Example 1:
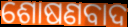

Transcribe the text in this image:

ଶୋଷଣବାଦ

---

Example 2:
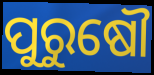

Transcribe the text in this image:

ପୁରୁଷୌ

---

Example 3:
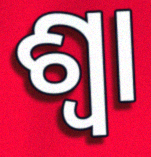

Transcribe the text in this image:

ଶ୍ୱା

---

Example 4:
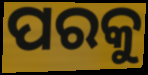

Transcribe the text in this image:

ପରକୁ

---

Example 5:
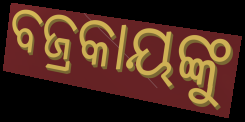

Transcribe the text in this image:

ବଜ୍ରକାୟଙ୍କୁ